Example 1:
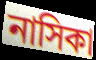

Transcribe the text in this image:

নাসিকা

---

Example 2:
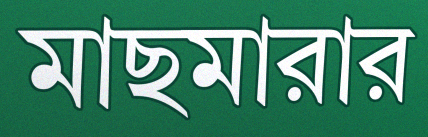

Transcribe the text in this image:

মাছমারার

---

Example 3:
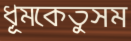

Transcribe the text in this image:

ধূমকেতুসম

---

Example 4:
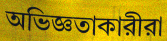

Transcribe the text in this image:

অভিজ্ঞতাকারীরা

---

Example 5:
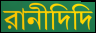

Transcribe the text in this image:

রানীদিদি